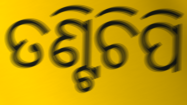
ତଣ୍ଟିଚିପି